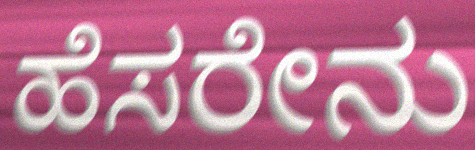
ಹೆಸರೇನು